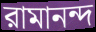
রামানন্দ